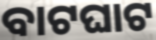
ବାଟଘାଟ